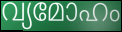
വ്യമോഹം